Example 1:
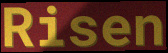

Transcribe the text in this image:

Risen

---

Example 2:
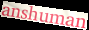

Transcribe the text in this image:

anshuman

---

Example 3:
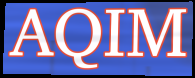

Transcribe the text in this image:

AQIM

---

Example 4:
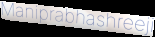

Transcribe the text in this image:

Maniprabhashreeji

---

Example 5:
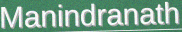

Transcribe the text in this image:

Manindranath